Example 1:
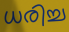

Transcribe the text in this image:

ധരിച്ച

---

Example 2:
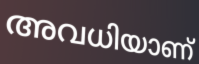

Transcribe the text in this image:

അവധിയാണ്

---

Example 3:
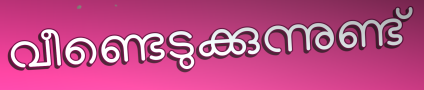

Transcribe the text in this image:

വീണ്ടെടുക്കുന്നുണ്ട്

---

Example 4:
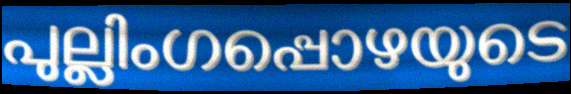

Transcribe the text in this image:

പുല്ലിംഗപ്പൊഴയുടെ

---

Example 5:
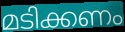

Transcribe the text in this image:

മടിക്കണം